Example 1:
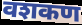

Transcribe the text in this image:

वशकण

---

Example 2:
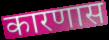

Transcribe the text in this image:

कारणास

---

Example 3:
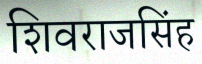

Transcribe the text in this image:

शिवराजसिंह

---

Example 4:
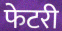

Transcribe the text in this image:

फेटरी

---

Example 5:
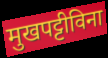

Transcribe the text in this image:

मुखपट्टीविना